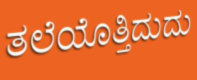
ತಲೆಯೊತ್ತಿದುದು